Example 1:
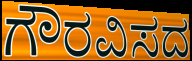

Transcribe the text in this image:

ಗೌರವಿಸದ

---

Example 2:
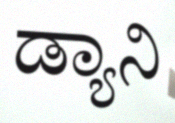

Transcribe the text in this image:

ಡ್ಯಾನಿ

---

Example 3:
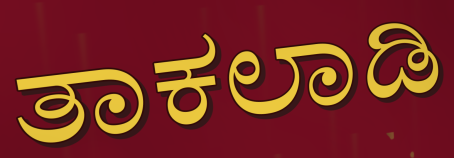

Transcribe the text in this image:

ತಾಕಲಾಡಿ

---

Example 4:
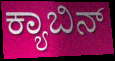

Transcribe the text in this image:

ಕ್ಯಾಬಿನ್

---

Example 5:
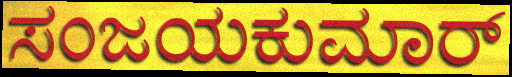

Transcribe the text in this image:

ಸಂಜಯಕುಮಾರ್